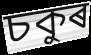
চকুৰ